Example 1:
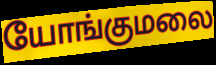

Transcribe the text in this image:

யோங்குமலை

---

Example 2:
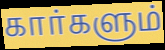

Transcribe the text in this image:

கார்களும்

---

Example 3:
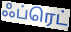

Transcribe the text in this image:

ஃப்ரெட்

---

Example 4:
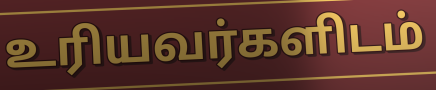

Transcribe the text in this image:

உரியவர்களிடம்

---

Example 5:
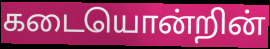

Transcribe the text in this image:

கடையொன்றின்